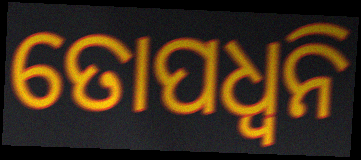
ତୋପଧ୍ୱନି